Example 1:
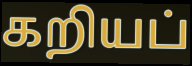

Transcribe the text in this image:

கறியப்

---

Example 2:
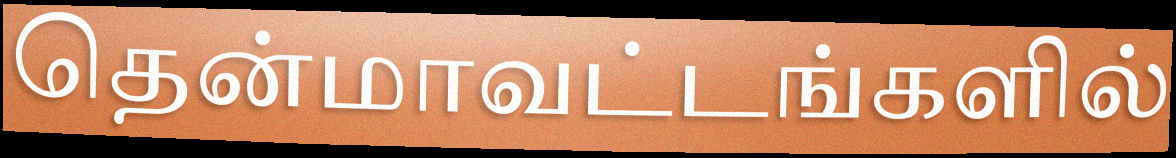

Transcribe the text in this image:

தென்மாவட்டங்களில்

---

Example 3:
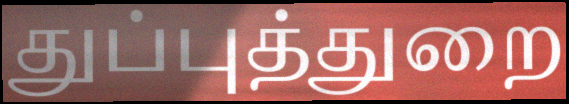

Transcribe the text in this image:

துப்புத்துறை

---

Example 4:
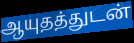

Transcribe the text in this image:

ஆயுதத்துடன்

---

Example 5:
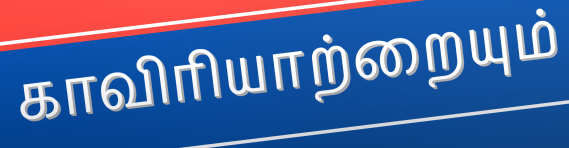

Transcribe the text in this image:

காவிரியாற்றையும்